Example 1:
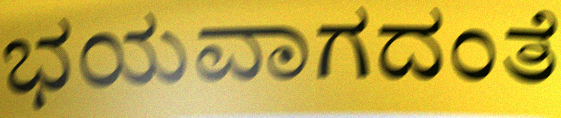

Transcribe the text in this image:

ಭಯವಾಗದಂತೆ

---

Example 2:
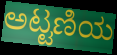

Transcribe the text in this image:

ಅಟ್ಟಣಿಯ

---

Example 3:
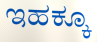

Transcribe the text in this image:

ಇಹಕ್ಕೂ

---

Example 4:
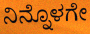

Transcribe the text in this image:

ನಿನ್ನೊಳಗೇ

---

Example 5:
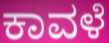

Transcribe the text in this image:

ಕಾವಳೆ